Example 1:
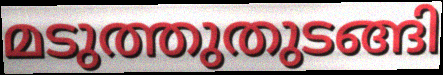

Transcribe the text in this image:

മടുത്തുതുടങ്ങി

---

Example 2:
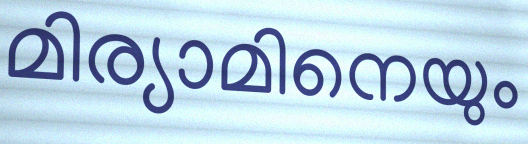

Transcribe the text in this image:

മിര്യാമിനെയും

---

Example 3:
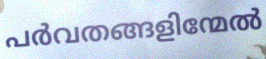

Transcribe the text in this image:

പർവതങ്ങളിന്മേൽ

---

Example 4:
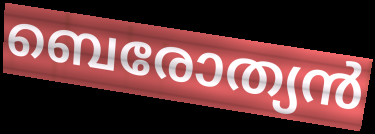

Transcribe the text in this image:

ബെരോത്യൻ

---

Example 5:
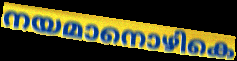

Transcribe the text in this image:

നയമാനൊഴികെ